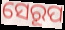
ସେରୂପ